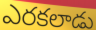
ఎరకలాడు